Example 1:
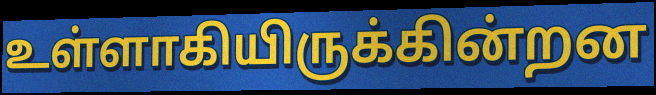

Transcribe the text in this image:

உள்ளாகியிருக்கின்றன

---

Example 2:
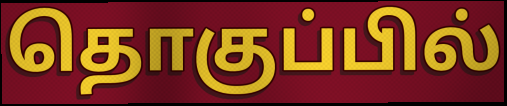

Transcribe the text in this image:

தொகுப்பில்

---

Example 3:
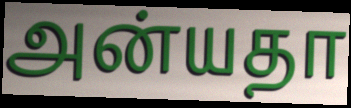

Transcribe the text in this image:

அன்யதா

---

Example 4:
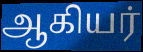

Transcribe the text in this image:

ஆகியர்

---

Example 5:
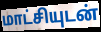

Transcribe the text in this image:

மாட்சியுடன்